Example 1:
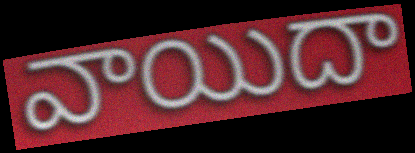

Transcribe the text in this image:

వాయిదా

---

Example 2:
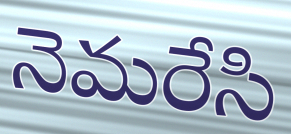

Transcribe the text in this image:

నెమరేసి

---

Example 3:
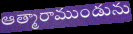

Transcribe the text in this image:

ఆత్మారాముండును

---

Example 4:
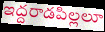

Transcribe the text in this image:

ఇద్దరాడపిల్లలూ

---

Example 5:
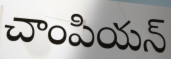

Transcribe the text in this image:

చాంపియన్